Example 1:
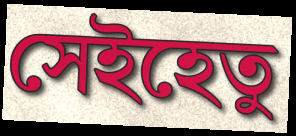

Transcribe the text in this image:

সেইহেতু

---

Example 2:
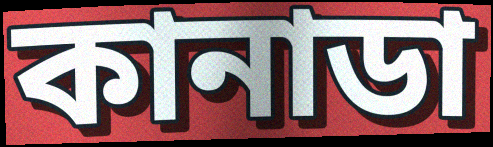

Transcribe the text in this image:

কানাডা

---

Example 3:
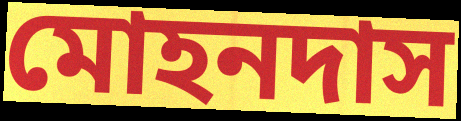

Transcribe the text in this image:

মোহনদাস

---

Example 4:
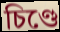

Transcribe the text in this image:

চিণ্ডে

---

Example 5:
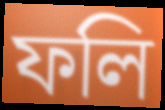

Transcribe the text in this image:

ফলি